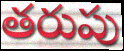
తరుపు